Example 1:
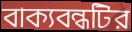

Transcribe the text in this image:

বাক্যবন্ধটির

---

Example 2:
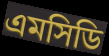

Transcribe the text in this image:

এমসিডি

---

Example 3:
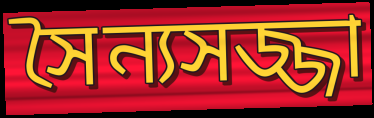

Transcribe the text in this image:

সৈন্যসজ্জা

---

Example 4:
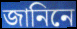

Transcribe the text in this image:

জানিনে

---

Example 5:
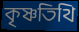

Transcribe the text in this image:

কৃষ্ণতিথি